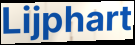
Lijphart